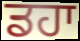
ਡਹਾ